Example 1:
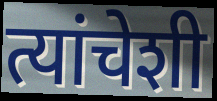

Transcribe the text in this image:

त्यांचेशी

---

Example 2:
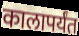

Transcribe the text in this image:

कालापर्यंत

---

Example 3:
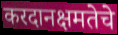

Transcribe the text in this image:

करदानक्षमतेचे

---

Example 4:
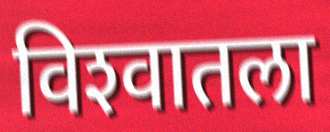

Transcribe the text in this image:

विश्‍वातला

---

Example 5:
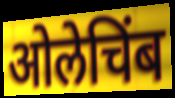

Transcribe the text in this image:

ओलेचिंब